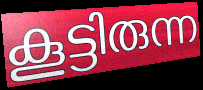
കൂട്ടിരുന്ന